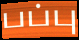
பப்பு